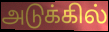
அடுக்கில்